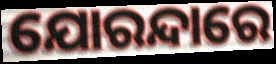
ଯୋରନ୍ଦାରେ